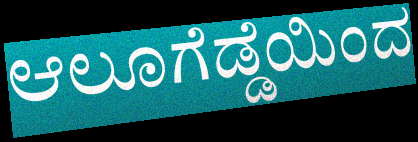
ಆಲೂಗೆಡ್ಡೆಯಿಂದ